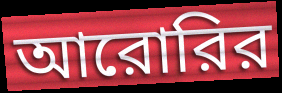
আরোরির